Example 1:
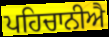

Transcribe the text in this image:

ਪਹਿਚਾਨੀਐ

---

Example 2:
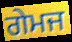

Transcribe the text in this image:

ਗੇਮਜ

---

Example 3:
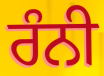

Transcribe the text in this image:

ਰੰਨੀ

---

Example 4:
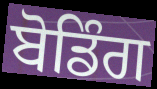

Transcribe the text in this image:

ਬੋਡਿੰਗ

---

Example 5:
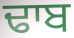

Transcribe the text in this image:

ਢਾਬ